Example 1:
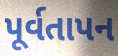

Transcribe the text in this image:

પૂર્વતાપન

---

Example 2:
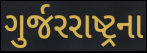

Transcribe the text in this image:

ગુર્જરરાષ્ટ્રના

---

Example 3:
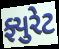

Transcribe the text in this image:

ફ્યુરેટ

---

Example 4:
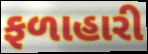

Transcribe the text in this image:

ફળાહારી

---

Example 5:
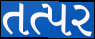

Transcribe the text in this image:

તત્પર